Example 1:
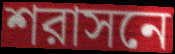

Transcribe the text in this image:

শরাসনে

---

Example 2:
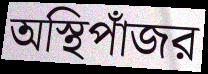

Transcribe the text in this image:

অস্থিপাঁজর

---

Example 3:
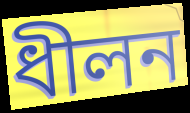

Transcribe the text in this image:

ধীলন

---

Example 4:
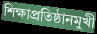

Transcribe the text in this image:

শিক্ষাপ্রতিষ্ঠানমুখী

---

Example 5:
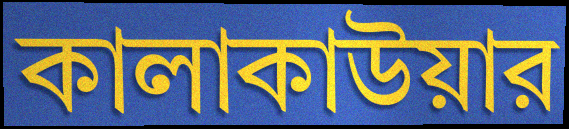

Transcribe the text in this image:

কালাকাউয়ার